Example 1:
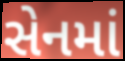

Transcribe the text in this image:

સેનમાં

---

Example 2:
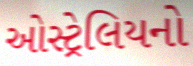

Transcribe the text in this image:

ઓસ્ટ્રેલિયનો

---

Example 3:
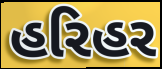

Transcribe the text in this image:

હરિહર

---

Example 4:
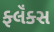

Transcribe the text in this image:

ફ્લૅંક્સ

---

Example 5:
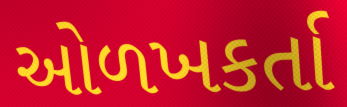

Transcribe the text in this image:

ઓળખકર્તા